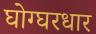
घोग्घरधार